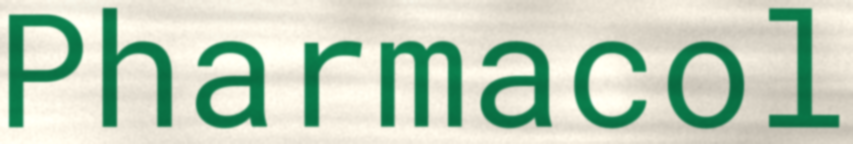
Pharmacol